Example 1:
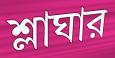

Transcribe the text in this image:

শ্লাঘার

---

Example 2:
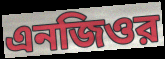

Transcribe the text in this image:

এনজিওর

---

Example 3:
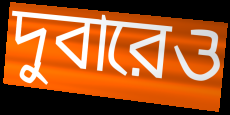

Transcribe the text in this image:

দুবারেও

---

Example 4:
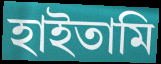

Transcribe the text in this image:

হাইতামি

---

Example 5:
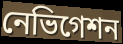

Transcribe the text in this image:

নেভিগেশন